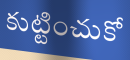
కుట్టించుకో